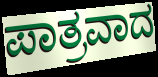
ಪಾತ್ರವಾದ